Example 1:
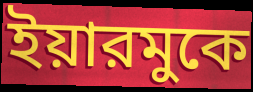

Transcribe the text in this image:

ইয়ারমুকে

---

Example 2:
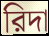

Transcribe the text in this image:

রিদা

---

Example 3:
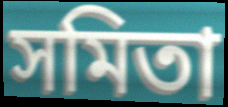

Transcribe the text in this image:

সমিতা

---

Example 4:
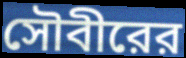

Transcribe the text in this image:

সৌবীরের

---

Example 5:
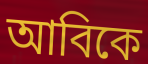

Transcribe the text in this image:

আবিকে